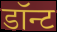
डॉन्ट